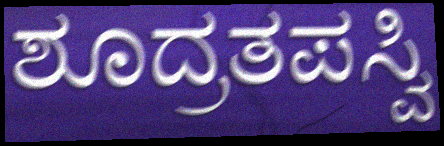
ಶೂದ್ರತಪಸ್ವಿ